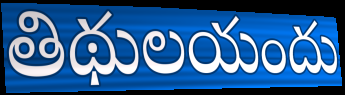
తిథులయందు